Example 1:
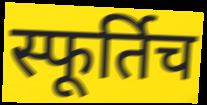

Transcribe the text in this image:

स्फूर्तिच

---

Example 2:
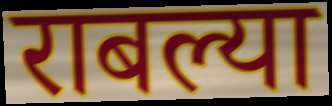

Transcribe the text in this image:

राबल्या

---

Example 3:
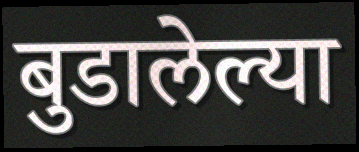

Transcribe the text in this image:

बुडालेल्या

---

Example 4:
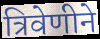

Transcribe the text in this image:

त्रिवेणीने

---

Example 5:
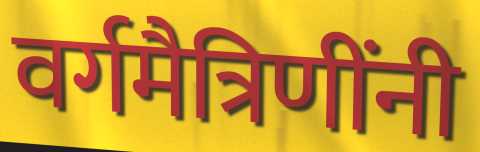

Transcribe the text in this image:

वर्गमैत्रिणींनी